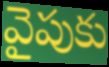
వైపుకు